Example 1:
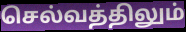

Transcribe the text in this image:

செல்வத்திலும்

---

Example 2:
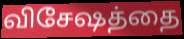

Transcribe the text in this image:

விசேஷத்தை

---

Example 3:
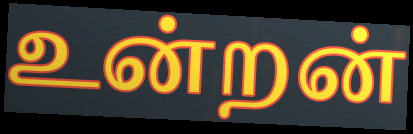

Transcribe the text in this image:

உன்றன்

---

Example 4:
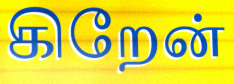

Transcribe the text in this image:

கிறேன்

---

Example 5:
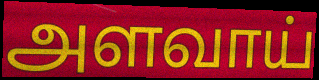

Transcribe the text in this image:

அளவாய்